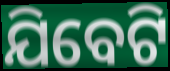
ଯିବେଟି